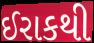
ઈરાકથી